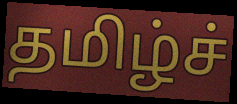
தமிழ்ச்